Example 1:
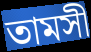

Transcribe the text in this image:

তামসী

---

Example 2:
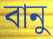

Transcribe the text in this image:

বানু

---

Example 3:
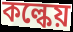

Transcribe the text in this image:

কল্কেয়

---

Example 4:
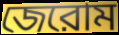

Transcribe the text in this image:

জেরোম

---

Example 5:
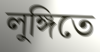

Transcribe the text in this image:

লুঙ্গিতে